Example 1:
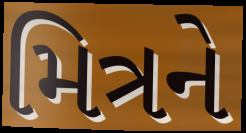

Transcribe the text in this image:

મિત્રને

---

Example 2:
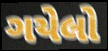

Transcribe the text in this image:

ગયેલો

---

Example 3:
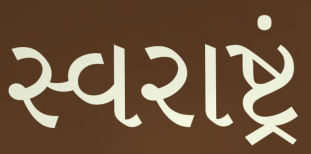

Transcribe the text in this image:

સ્વરાષ્ટ્રં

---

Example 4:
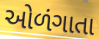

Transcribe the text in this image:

ઓળંગાતા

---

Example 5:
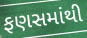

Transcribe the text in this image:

ફણસમાંથી